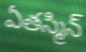
ఏతస్మిన్